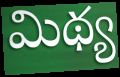
మిథ్య